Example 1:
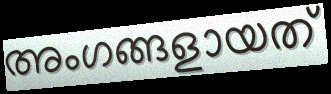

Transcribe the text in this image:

അംഗങ്ങളായത്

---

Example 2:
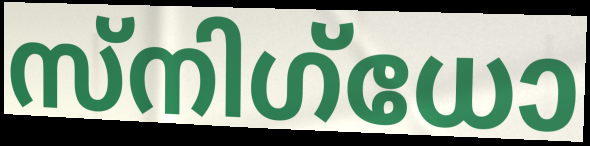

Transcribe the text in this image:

സ്നിഗ്ധോ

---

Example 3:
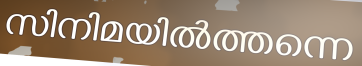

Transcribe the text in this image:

സിനിമയിൽത്തന്നെ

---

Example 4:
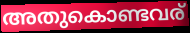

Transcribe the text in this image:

അതുകൊണ്ടവര്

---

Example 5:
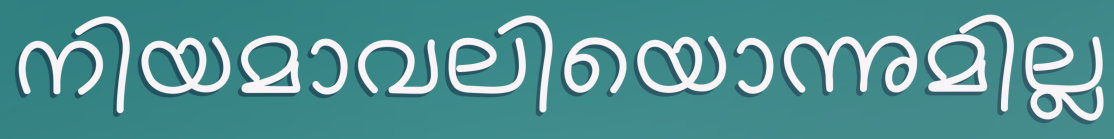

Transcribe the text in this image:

നിയമാവലിയൊന്നുമില്ല